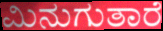
ಮಿನುಗುತಾರೆ